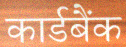
कार्डबैंक